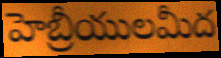
హెబ్రీయులమీద